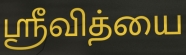
ஸ்ரீவித்யை